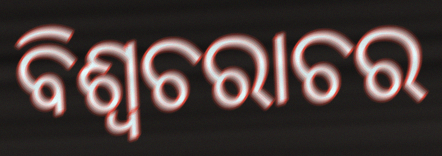
ବିଶ୍ଵଚରାଚର